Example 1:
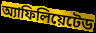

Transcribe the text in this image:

অ্যাফিলিয়েটেড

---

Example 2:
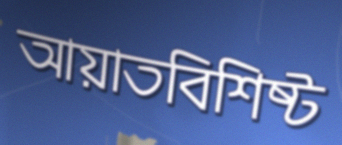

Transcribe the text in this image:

আয়াতবিশিষ্ট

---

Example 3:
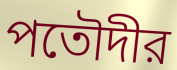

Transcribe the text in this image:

পতৌদীর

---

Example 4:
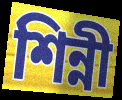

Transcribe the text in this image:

শিন্নী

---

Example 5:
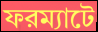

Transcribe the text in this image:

ফরম্যাটে